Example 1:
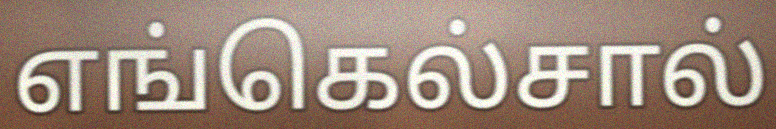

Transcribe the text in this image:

எங்கெல்சால்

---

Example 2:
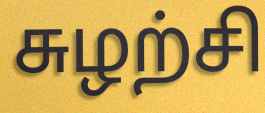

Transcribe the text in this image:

சுழற்சி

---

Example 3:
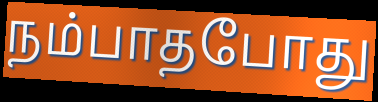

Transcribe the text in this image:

நம்பாதபோது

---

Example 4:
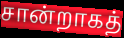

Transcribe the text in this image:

சான்றாகத்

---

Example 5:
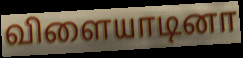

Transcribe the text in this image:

விளையாடினா